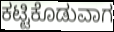
ಕಟ್ಟಿಕೊಡುವಾಗ